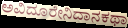
ಅವಿದೂರೇನಿದಾನಕಥಾ